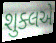
શુક્લએ